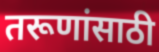
तरूणांसाठी